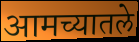
आमच्यातले